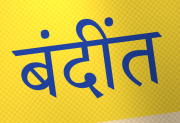
बंदींत